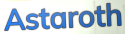
Astaroth